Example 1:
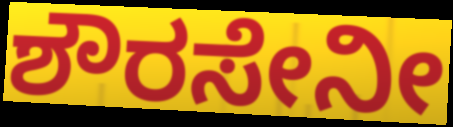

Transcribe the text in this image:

ಶೌರಸೇನೀ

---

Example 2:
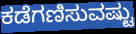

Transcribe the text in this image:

ಕಡೆಗಣಿಸುವಷ್ಟು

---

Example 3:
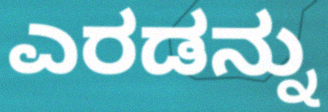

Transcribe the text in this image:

ಎರಡನ್ನು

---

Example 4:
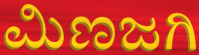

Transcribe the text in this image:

ಮಿಣಜಗಿ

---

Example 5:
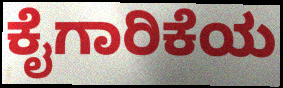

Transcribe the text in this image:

ಕೈಗಾರಿಕೆಯ